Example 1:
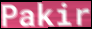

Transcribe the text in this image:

Pakir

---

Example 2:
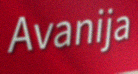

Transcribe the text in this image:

Avanija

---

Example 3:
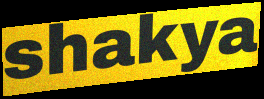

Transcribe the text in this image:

shakya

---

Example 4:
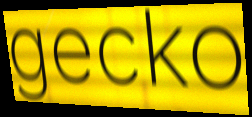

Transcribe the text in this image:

gecko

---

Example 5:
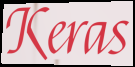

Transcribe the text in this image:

Keras